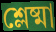
শ্লেষ্মা